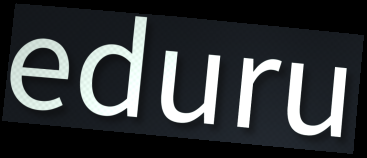
eduru